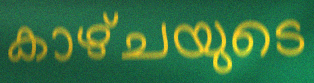
കാഴ്‌ചയുടെ